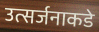
उत्सर्जनाकडे